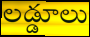
లడ్డూలు